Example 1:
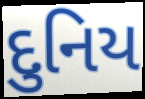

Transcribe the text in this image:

દુનિય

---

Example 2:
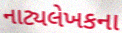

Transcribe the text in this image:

નાટ્યલેખકના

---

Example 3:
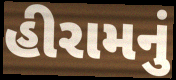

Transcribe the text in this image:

હીરામનું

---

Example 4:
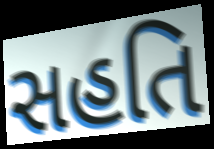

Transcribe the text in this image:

સહતિ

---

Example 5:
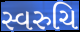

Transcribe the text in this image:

સ્વરુચિ